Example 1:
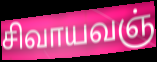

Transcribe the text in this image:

சிவாயவஞ்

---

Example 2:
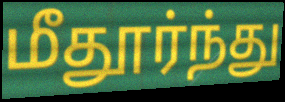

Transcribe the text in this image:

மீதூர்ந்து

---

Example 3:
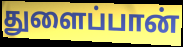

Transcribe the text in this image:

துளைப்பான்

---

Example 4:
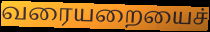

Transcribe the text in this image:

வரையறையைச்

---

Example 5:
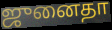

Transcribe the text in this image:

ஜுனைதா